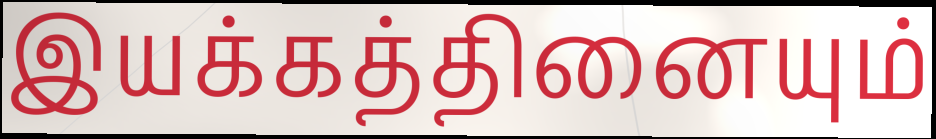
இயக்கத்தினையும்